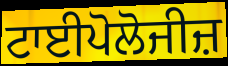
ਟਾਈਪੋਲੋਜੀਜ਼